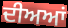
ਦੀਅਆਂ